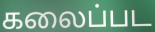
கலைப்பட